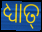
ଧ୍ୟାତ୍